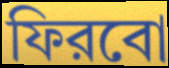
ফিরবো